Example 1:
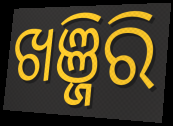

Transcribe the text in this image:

ଖଞ୍ଜିରି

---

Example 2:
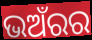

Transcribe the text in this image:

ଭଅଁରର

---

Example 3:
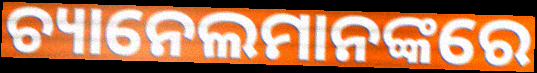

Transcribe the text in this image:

ଚ୍ୟାନେଲମାନଙ୍କରେ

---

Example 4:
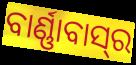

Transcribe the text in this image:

ବାର୍ଣ୍ଣାବାସ୍‌ର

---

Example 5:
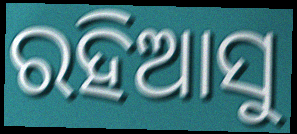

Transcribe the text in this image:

ରହିଆସୁ